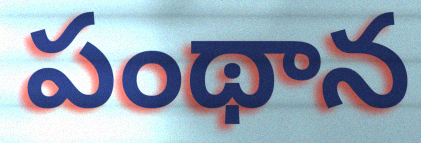
పంథాన